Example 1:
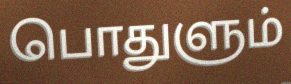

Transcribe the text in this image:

பொதுளும்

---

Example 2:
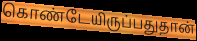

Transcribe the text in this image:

கொண்டேயிருப்பதுதான்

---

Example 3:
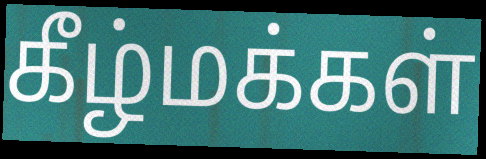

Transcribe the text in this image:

கீழ்மக்கள்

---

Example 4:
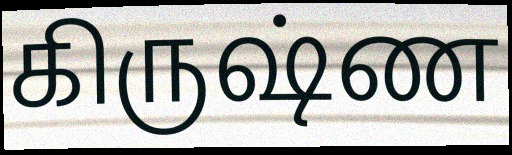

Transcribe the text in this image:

கிருஷ்ண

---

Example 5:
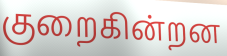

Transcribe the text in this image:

குறைகின்றன